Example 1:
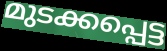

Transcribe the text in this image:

മുടക്കപ്പെട്ട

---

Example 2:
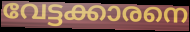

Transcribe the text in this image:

വേട്ടക്കാരനെ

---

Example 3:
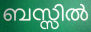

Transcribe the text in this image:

ബസ്സിൽ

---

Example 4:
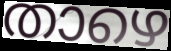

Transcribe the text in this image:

താഴെ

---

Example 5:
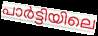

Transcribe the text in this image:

പാർട്ടിയിലെ